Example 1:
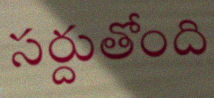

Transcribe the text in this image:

సర్దుతోంది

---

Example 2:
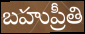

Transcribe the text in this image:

బహుప్రీతి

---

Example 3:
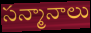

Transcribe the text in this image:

సన్మానాలు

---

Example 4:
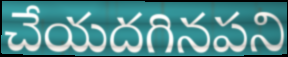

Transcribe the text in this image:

చేయదగినపని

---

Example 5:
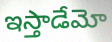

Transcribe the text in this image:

ఇస్తాడేమో